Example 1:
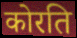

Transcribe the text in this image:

कोरति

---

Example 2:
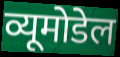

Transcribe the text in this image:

व्यूमोडेल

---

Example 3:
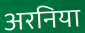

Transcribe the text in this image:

अरनिया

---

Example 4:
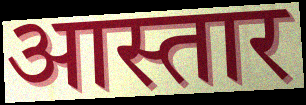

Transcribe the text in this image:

आस्तार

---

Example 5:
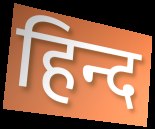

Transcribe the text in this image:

हिन्द